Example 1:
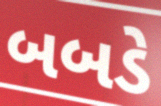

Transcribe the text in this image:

બબડે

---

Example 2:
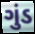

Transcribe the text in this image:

ગુંડ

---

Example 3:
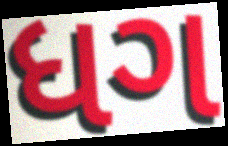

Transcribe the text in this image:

ધગ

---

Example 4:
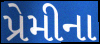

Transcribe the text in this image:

પ્રેમીના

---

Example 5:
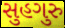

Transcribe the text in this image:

સુહગુરુ